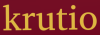
krutio